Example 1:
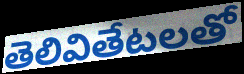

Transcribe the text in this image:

తెలివితేటలతో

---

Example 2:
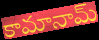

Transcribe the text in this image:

కామానామ్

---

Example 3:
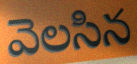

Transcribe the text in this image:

వెలసిన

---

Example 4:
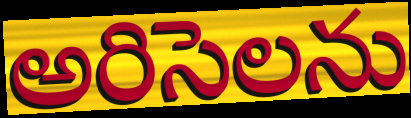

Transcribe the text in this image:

అరిసెలను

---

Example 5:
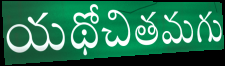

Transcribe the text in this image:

యథోచితమగు